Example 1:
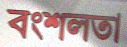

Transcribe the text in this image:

বংশলতা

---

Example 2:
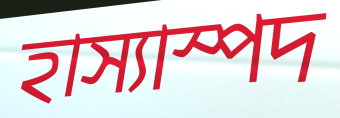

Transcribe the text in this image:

হাস্যাস্পদ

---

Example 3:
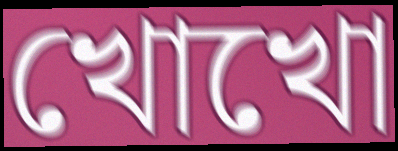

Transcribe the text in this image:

খোখো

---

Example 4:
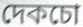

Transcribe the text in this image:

দেকচো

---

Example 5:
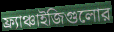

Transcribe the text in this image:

ফ্র্যাঞ্চাইজিগুলোর